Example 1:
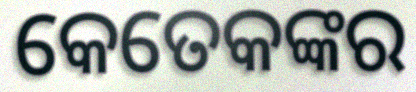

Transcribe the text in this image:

କେତେକଙ୍କର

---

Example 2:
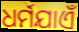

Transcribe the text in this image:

ଧର୍ମଯାଏଁ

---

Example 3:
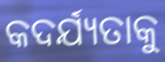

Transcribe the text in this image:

କଦର୍ଯ୍ୟତାକୁ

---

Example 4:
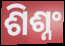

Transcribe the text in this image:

ଶିଶ୍ନଂ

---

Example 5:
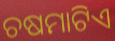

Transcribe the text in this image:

ଚଷମାଟିଏ